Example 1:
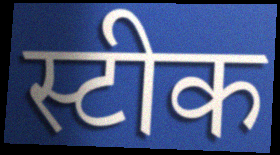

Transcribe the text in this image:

स्टीक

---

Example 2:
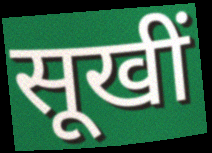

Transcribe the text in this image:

सूखीं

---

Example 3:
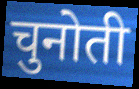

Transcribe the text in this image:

चुनोती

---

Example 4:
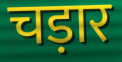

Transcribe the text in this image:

चड़ार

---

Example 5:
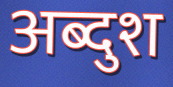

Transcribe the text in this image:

अब्दुश